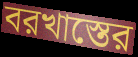
বরখাস্তের